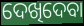
ଦେଖିଦେବା